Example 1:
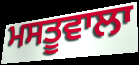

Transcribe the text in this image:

ਮਸਤੂਵਾਲਾ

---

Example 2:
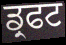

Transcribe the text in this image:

ਡ੍ਰਫਟ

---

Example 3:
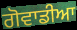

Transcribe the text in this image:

ਗੋਵਾਡੀਆ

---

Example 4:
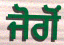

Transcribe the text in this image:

ਜੋਗੋਂ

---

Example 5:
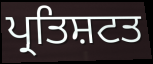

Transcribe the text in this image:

ਪ੍ਰਤਿਸ਼ਟਤ